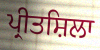
ਪ੍ਰੀਤਸ਼ਿਲਾ